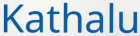
Kathalu